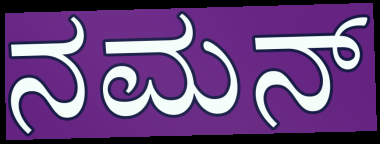
ನಮನ್